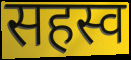
सहस्व